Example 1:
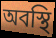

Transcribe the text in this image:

অবস্থি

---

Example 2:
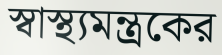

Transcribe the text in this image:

স্বাস্থ্যমন্ত্রকের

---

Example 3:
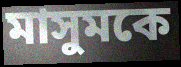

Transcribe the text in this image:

মাসুমকে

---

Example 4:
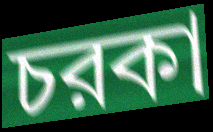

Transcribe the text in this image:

চরকা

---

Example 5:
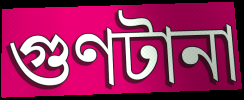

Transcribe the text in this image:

গুণটানা